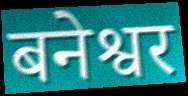
बनेश्वर